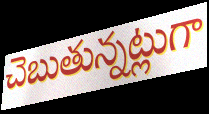
చెబుతున్నట్లుగా